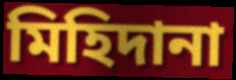
মিহিদানা